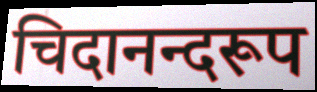
चिदानन्दरूप